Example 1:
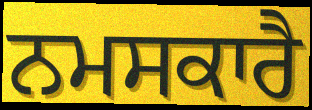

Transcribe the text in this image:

ਨਮਸਕਾਰੈ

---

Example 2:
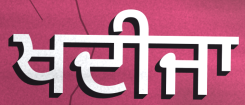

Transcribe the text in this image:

ਖਦੀਜਾ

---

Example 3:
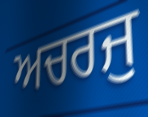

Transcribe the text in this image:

ਅਚਰਜੁ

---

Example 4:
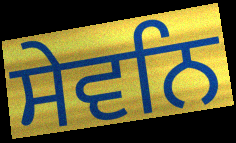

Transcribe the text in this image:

ਸੇਵਨਿ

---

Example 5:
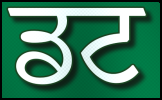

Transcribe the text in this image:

ਡਟ